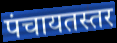
पंचायतस्तर